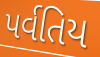
પર્વતિય